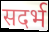
सदर्भ